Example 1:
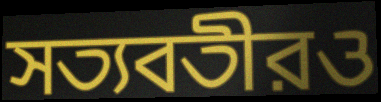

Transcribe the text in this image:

সত্যবতীরও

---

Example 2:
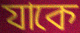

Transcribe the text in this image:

যাকে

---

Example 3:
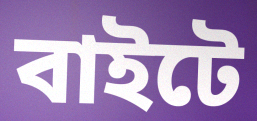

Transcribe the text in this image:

বাইটে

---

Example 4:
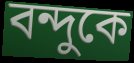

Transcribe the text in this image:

বন্দুকে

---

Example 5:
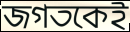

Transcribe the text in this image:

জগতকেই